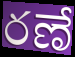
రణే